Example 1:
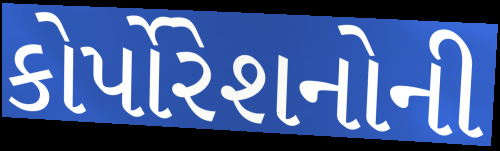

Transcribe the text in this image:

કોર્પોરેશનોની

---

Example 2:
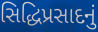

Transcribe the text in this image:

સિદ્ધિપ્રસાદનું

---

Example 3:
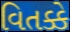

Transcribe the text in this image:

વિતક્કે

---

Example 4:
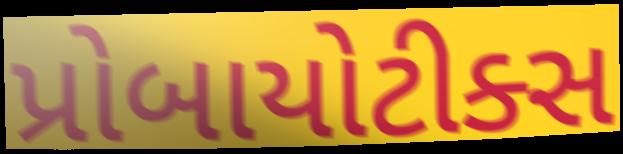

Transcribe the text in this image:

પ્રોબાયોટીક્સ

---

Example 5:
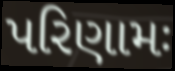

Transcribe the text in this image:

પરિણામઃ